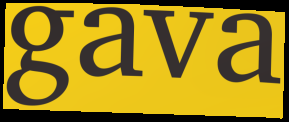
gava